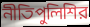
নীতিপুলিশির